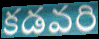
కడవరి